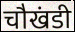
चौखंडी